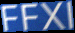
FFXI